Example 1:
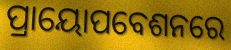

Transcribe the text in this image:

ପ୍ରାୟୋପବେଶନରେ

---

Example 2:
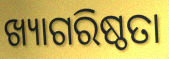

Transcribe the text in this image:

ଖ୍ୟାଗରିଷ୍ଠତା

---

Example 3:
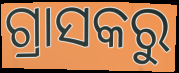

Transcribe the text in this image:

ଗ୍ରାସକରୁ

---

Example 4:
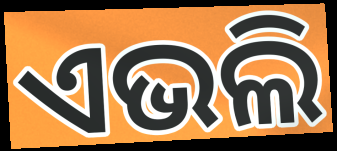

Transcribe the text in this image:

ଏଭଲି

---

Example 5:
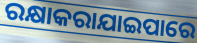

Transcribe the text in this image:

ରକ୍ଷାକରାଯାଇପାରେ